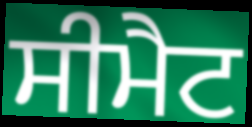
ਸੀਮੈਟ